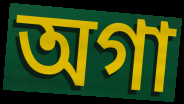
অগা